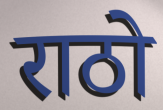
राठो